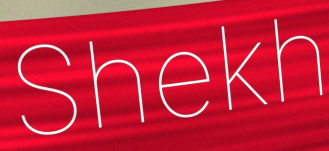
Shekh